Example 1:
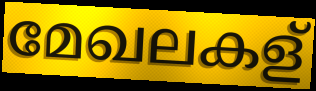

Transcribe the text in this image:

മേഖലകള്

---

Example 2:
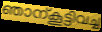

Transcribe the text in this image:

ഞാന്കൂട്ടിവച്ച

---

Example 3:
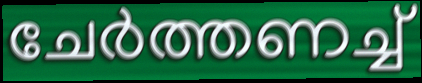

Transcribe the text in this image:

ചേർത്തണച്ച്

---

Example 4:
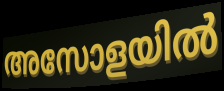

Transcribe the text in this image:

അസോളയിൽ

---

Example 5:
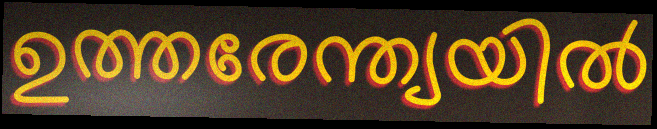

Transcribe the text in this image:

ഉത്തരേന്ത്യയിൽ